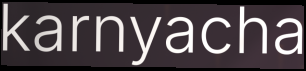
karnyacha